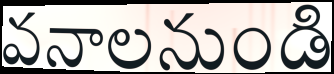
వనాలనుండి